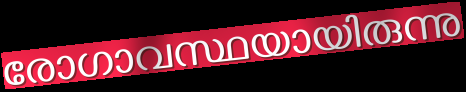
രോഗാവസ്ഥയായിരുന്നു